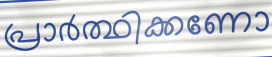
പ്രാർത്ഥിക്കണോ